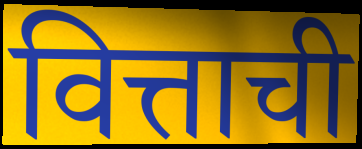
वित्ताची